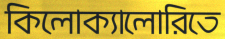
কিলোক্যালোরিতে